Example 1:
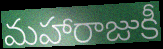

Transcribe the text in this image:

మహారాజుకీ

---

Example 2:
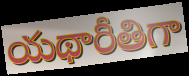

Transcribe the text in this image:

యథారీతిగా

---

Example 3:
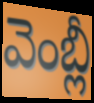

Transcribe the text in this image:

వెంబ్లీ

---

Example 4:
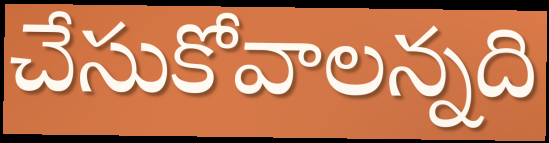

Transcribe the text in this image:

చేసుకోవాలన్నది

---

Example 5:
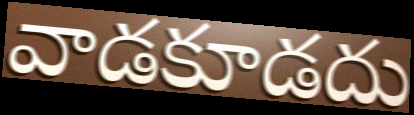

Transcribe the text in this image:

వాడకూడదు